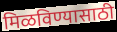
मिळविण्यासाठी